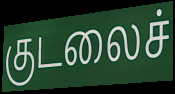
குடலைச்